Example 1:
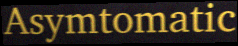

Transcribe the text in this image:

Asymtomatic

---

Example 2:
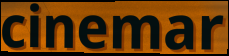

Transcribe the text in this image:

cinemar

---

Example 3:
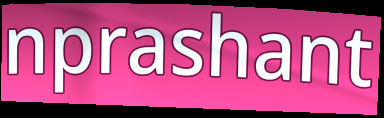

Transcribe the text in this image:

nprashant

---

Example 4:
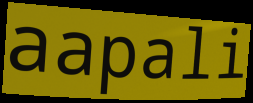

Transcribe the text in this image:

aapali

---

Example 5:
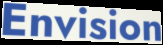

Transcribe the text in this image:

Envision